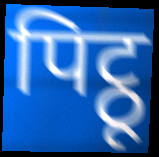
पिट्ठू